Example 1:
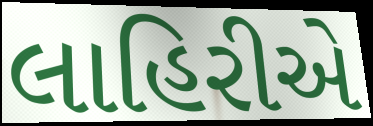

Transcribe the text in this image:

લાહિરીએ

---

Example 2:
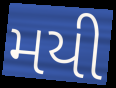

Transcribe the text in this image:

મયી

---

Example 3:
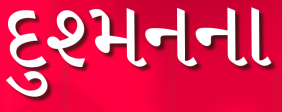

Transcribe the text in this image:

દુશ્મનના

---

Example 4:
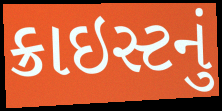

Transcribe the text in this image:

ક્રાઇસ્ટનું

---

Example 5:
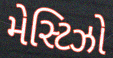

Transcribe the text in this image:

મેસ્ટિઝો